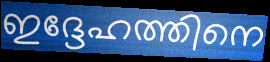
ഇദ്ദേഹത്തിനെ